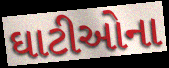
ઘાટીઓના